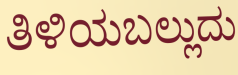
ತಿಳಿಯಬಲ್ಲುದು